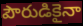
పౌరుడికైనా